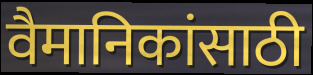
वैमानिकांसाठी